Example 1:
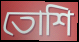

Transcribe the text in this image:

তোশি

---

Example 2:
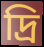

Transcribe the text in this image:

দ্রি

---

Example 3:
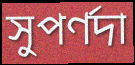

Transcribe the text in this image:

সুপর্ণদা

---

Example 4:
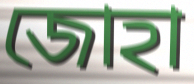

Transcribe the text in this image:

জোহা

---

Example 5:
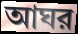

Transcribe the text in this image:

আঘর